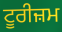
ਟੂਰੀਜ਼ਮ